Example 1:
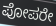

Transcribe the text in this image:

ಪೋಪರೇ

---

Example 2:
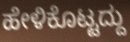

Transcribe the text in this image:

ಹೇಳಿಕೊಟ್ಟದ್ದು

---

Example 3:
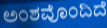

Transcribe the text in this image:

ಅಂಶವೊಂದಿದೆ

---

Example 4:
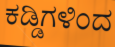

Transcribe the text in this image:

ಕಡ್ಡಿಗಳಿಂದ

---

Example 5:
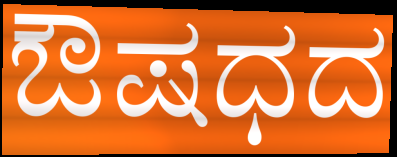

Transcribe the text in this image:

ಔಷಧದ